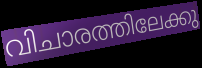
വിചാരത്തിലേക്കു